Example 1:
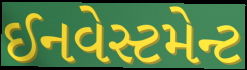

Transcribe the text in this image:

ઈનવેસ્ટમેન્ટ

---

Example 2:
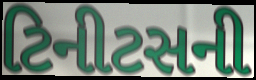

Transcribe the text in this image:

ટિનીટસની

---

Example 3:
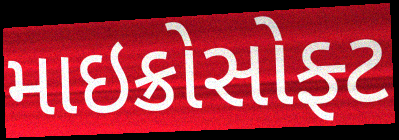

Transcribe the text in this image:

માઇક્રોસોફ્ટ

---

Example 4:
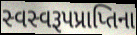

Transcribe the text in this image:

સ્વસ્વરૂપપ્રાપ્તિના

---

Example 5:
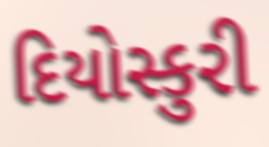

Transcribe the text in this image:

દિયોસ્કુરી